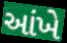
આંખે